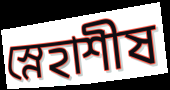
স্নেহাশীষ